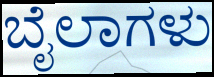
ಬೈಲಾಗಳು